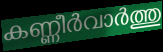
കണ്ണീർവാർത്തു